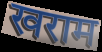
खराम